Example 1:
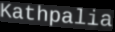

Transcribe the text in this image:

Kathpalia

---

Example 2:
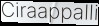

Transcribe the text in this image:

Ciraappalli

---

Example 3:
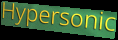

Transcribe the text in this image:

Hypersonic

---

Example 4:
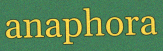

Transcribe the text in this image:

anaphora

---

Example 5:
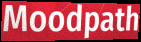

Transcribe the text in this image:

Moodpath